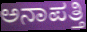
ಅನಾಪತ್ತಿ